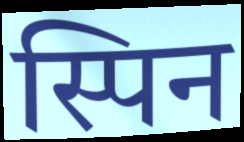
स्पिन